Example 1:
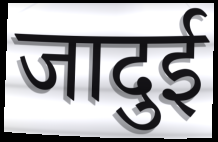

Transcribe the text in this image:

जादुई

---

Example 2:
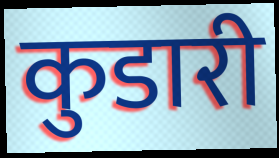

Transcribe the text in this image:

कुडारी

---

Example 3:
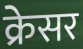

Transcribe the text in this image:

क्रेसर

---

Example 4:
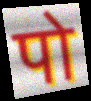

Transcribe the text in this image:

पो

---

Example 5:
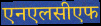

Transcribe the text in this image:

एनएलसीएफ